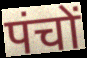
पंचों